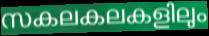
സകലകലകളിലും